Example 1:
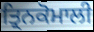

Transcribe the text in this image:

ਤ੍ਰਿਨਕੋਮਾਲੀ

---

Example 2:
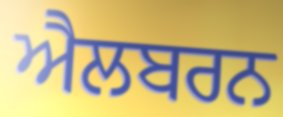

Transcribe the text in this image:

ਐਲਬਰਨ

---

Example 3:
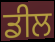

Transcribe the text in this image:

ਡੀਲ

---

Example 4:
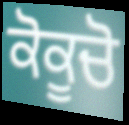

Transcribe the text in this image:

ਕੋਕੂਚੋ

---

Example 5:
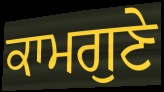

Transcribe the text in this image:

ਕਾਮਗੁਣੇ